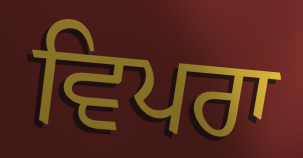
ਵਿਪਰਾ